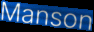
Manson